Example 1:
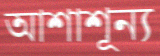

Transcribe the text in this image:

আশাশূন্য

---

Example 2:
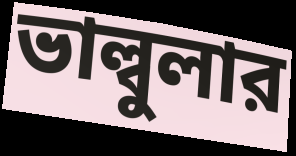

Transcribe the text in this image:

ভাল্বুলার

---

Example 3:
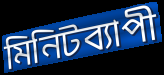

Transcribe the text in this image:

মিনিটব্যাপী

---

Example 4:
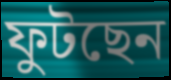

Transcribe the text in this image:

ফুটছেন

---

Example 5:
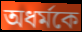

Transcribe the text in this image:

অধর্মকে